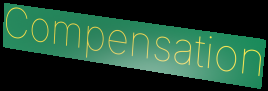
Compensation